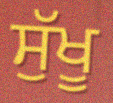
ਸੁੱਖੂ